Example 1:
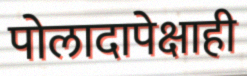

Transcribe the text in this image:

पोलादापेक्षाही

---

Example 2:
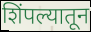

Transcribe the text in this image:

शिंपल्यातून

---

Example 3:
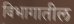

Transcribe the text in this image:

विभागातील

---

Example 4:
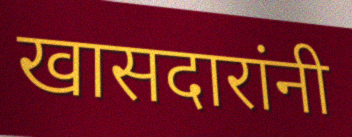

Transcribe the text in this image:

खासदारांनी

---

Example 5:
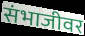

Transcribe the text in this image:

संभाजीवर